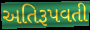
અતિરૂપવતી